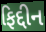
ફિદ્દીન